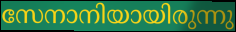
സേനാനിയായിരുന്നു